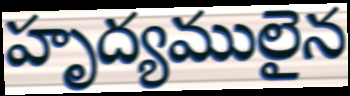
హృద్యములైన